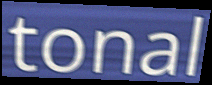
tonal